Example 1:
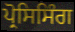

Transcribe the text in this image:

ਪ੍ਰੋਸਿਸਿੰਗ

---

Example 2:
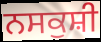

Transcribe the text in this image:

ਨਸਕੁਸ਼ੀ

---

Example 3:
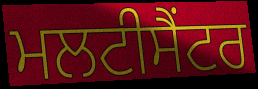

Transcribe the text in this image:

ਮਲਟੀਸੈਂਟਰ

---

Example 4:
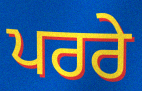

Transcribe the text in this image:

ਪਰਰੇ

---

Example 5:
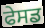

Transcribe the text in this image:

ਫੇਸਡ